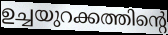
ഉച്ചയുറക്കത്തിന്റെ